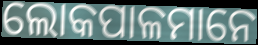
ଲୋକପାଳମାନେ